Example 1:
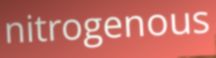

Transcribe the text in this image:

nitrogenous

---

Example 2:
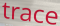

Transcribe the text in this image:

trace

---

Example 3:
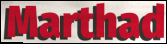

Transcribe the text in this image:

Marthad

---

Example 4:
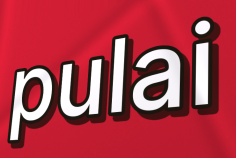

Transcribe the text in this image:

pulai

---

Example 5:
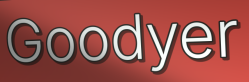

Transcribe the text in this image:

Goodyer